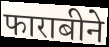
फाराबीने